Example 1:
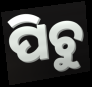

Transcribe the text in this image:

ପିଚୁ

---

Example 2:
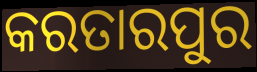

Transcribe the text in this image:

କରତାରପୁର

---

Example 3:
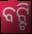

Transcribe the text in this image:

ବଟ୍ଟି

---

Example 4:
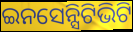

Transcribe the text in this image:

ଇନସେନ୍ସିଟିଭିଟି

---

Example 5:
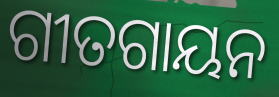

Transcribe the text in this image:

ଗୀତଗାୟନ